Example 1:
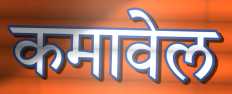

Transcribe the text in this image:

कमावेल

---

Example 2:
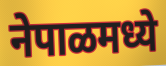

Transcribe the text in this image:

नेपाळमध्ये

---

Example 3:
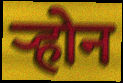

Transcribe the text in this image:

र्‍होन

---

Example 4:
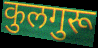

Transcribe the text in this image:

कुलगुरू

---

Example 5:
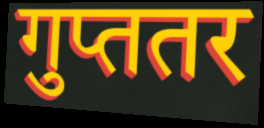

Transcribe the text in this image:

गुप्ततर